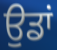
ਉਡਾਂ